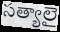
సత్యాలై